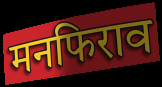
मनफिराव